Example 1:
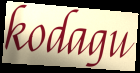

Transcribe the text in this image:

kodagu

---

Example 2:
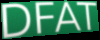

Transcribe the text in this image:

DFAT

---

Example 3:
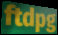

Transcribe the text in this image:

ftdpg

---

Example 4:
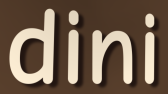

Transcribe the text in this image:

dini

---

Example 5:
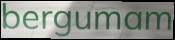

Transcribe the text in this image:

bergumam